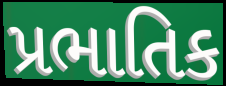
પ્રભાતિક